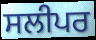
ਸਲੀਪਰ